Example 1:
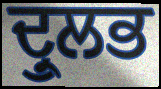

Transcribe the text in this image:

ਦ੍ਰੁਲਭ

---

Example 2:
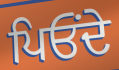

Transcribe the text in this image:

ਪਿਓਂਦੇ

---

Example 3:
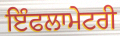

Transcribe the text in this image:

ਇੰਫਲਾਮੇਟਰੀ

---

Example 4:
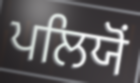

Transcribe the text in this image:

ਪਲਿਯੋਂ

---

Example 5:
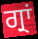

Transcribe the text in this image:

ਗ੍ਰਾਂ